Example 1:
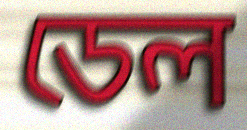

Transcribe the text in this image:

ডেল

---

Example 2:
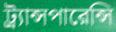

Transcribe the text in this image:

ট্র্যান্সপারেন্সি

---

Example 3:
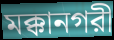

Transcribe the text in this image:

মক্কানগরী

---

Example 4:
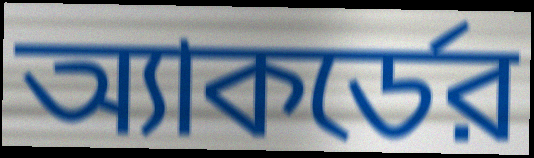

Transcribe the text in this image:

অ্যাকর্ডের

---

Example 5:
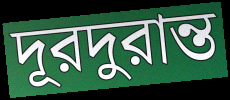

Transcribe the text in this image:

দূরদুরান্ত